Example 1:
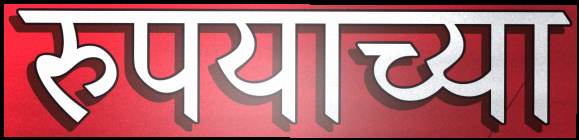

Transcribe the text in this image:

रुपयाच्या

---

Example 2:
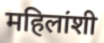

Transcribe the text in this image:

महिलांशी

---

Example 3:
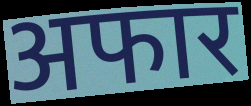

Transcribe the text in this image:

अफार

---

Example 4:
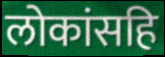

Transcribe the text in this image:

लोकांसहि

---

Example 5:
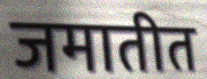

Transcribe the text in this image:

जमातीत